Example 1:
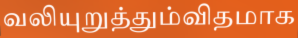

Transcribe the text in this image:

வலியுறுத்தும்விதமாக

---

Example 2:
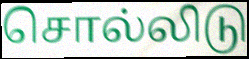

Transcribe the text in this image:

சொல்லிடு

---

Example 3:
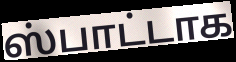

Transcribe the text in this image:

ஸ்பாட்டாக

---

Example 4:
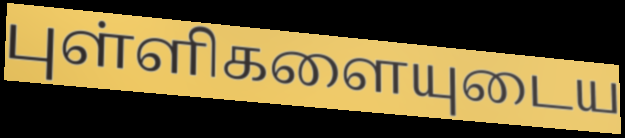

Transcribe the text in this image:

புள்ளிகளையுடைய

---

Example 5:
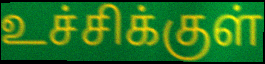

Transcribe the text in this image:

உச்சிக்குள்